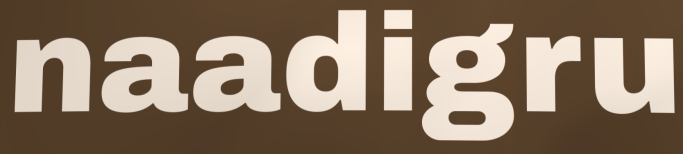
naadigru